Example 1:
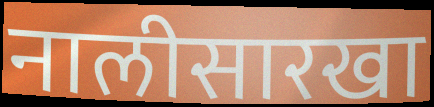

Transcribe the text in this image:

नालीसारखा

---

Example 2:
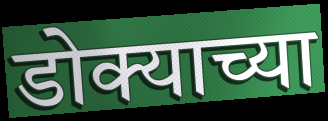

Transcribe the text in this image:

डोक्याच्या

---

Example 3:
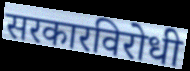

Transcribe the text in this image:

सरकारविरोधी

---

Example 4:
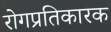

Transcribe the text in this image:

रोगप्रतिकारक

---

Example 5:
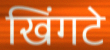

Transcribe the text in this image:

खिंगटे